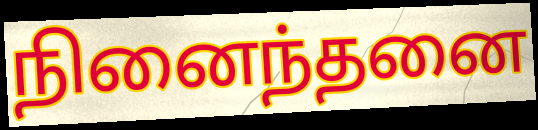
நினைந்தனை